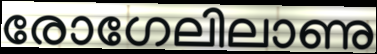
രോഗേലിലാണു